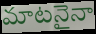
మాటనైనా